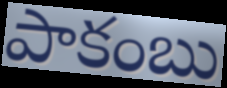
పాకంబు